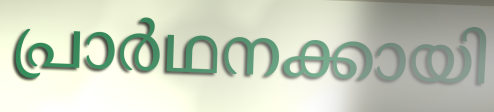
പ്രാർഥനക്കായി